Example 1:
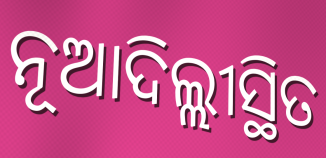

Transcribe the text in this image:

ନୂଆଦିଲ୍ଲୀସ୍ଥିତ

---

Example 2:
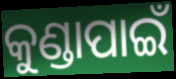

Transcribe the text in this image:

କୁଣ୍ଡାପାଇଁ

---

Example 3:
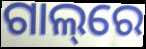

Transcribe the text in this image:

ଗାଲ୍‌ରେ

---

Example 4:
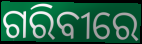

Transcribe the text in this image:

ଗରିବୀରେ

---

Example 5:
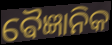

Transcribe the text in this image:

ଵୈଜ୍ଞାନିକ